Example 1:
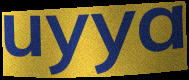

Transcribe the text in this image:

uyya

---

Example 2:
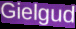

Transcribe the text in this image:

Gielgud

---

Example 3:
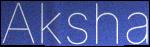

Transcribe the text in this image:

Aksha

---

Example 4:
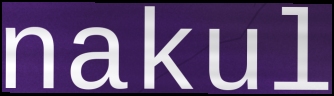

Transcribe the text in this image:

nakul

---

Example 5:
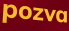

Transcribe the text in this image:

pozva